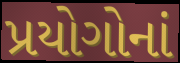
પ્રયોગોનાં